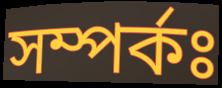
সম্পৰ্কঃ